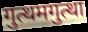
गुत्थमगुत्था